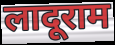
लादूराम